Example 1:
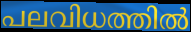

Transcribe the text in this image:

പലവിധത്തിൽ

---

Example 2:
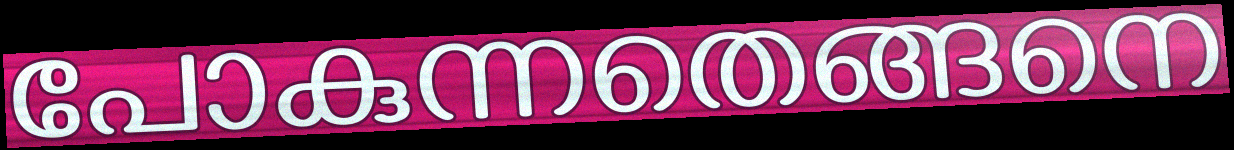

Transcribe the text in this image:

പോകുന്നതെങ്ങനെ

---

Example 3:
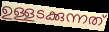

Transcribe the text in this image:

ഉള്ളടക്കുന്നത്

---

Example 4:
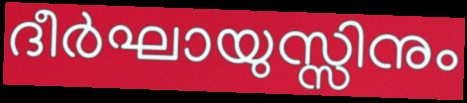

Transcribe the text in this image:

ദീർഘായുസ്സിനും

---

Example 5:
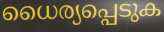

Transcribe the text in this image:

ധൈര്യപ്പെടുക